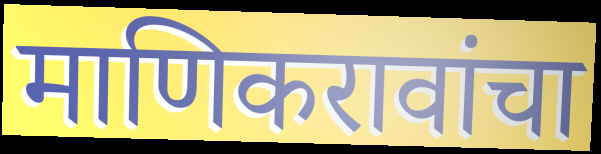
माणिकरावांचा